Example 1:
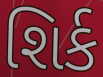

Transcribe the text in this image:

શિર્ક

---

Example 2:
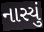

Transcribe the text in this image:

નાસ્યું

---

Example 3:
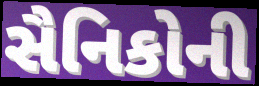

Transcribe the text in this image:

સૈનિકોની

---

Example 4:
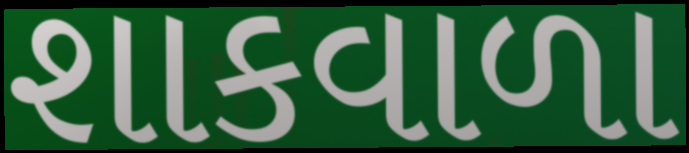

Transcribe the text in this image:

શાકવાળા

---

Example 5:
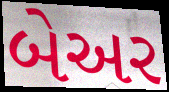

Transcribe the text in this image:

બેઅર